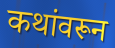
कथांवरून